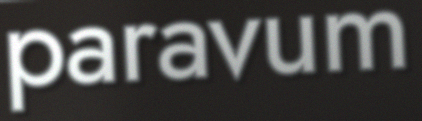
paravum